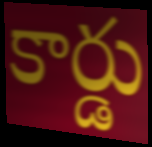
కార్డు